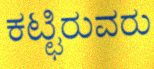
ಕಟ್ಟಿರುವರು